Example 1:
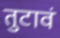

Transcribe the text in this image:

तुटावं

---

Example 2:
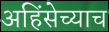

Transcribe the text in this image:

अहिंसेच्याच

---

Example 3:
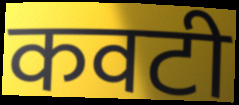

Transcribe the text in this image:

कवटी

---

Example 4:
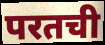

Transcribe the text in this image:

परतची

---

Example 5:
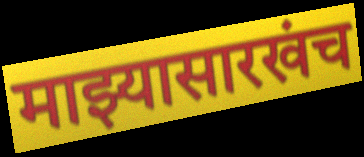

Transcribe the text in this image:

माझ्यासारखंच